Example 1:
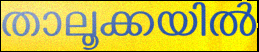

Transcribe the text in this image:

താലൂക്കയിൽ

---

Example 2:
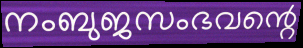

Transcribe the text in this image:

നംബുജസംഭവന്റെ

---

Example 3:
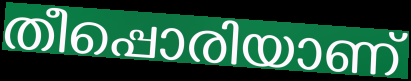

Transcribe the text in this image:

തീപ്പൊരിയാണ്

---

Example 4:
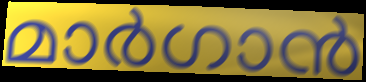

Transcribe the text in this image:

മാർഗാൻ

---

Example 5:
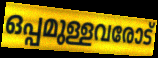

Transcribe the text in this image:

ഒപ്പമുള്ളവരോട്